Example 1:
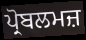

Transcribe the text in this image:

ਪ੍ਰੋਬਲਮਜ਼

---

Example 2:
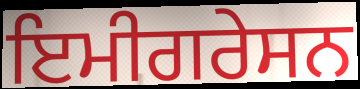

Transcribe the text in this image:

ਇਮੀਗਰੇਸਨ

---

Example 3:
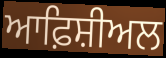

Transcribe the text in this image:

ਆਫ਼ਿਸ਼ੀਅਲ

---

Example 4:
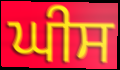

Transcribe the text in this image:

ਘੀਸ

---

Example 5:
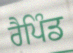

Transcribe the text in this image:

ਰੈਪਿੰਡ